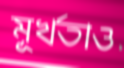
মূর্খতাও